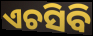
ଏଚସିବି